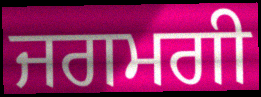
ਜਗਮਗੀ